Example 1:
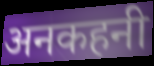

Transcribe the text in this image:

अनकहनी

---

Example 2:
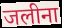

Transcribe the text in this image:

जलीना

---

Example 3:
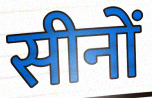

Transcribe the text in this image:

सीनों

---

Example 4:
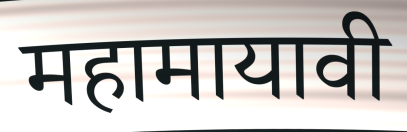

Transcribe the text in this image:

महामायावी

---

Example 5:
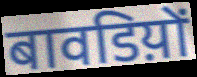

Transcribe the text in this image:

बावडिय़ों